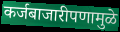
कर्जबाजारीपणामुळे